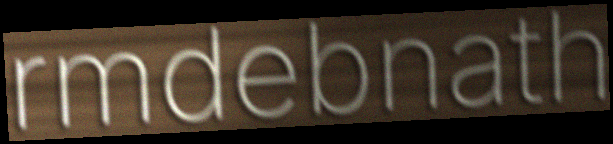
rmdebnath